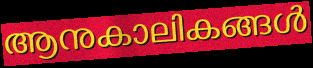
ആനുകാലികങ്ങൾ